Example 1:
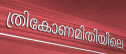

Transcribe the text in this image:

ത്രികോണമിതിയിലെ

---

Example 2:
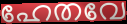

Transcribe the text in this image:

ഹേതവേ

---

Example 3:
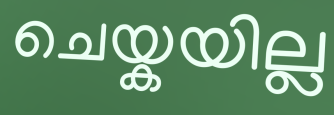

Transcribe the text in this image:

ചെയ്കയില്ല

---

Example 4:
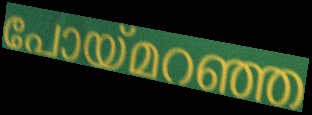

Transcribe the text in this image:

പോയ്മറഞ്ഞ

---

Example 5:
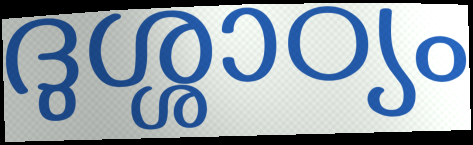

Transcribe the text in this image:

ദുശ്ശാഠ്യം